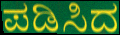
ಪಡಿಸಿದ